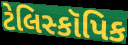
ટેલિસ્કૉપિક